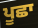
ਪੂਛਾ